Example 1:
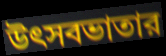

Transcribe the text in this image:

উৎসবভাতার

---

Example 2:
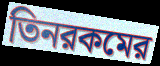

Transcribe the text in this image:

তিনরকমের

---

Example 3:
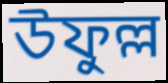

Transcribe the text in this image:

উফুল্ল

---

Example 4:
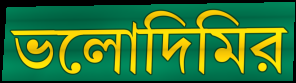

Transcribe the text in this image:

ভলোদিমির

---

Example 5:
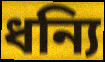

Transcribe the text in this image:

ধন্যি